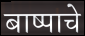
बाष्पाचे